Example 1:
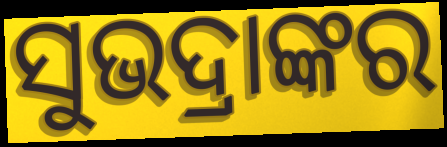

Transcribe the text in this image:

ସୁଭଦ୍ରାଙ୍କର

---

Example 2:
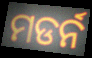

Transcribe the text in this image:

ମଡର୍ନ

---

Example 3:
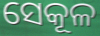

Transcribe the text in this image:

ସେକୂଳ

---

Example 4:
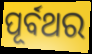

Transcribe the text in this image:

ପୂର୍ବଥର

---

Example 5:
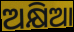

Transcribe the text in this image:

ଅକ୍ଷିଆ